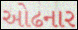
ઓઢનાર